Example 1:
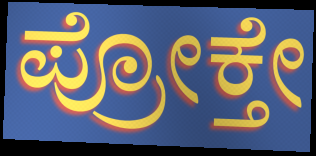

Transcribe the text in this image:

ಪ್ರೋಕ್ತೇ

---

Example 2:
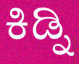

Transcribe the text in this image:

ಕಿಡ್ನಿ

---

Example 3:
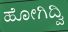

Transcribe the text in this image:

ಹೋಗಿದ್ವಿ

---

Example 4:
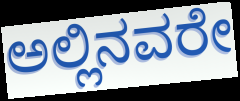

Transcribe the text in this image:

ಅಲ್ಲಿನವರೇ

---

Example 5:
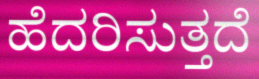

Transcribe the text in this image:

ಹೆದರಿಸುತ್ತದೆ